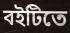
বইটিতে